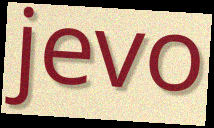
jevo